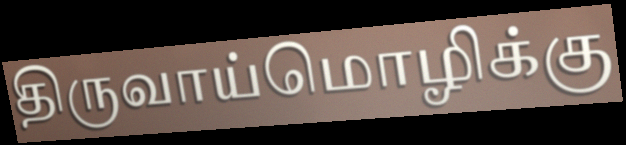
திருவாய்மொழிக்கு